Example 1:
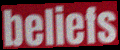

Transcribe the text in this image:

beliefs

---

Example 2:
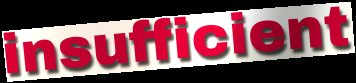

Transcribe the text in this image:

insufficient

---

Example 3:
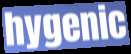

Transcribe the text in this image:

hygenic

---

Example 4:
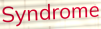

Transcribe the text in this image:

Syndrome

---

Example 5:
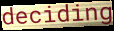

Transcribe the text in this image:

deciding